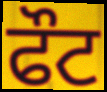
ਫੌਟ